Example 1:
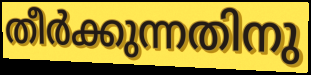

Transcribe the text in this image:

തീർക്കുന്നതിനു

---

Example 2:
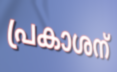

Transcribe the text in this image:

പ്രകാശന്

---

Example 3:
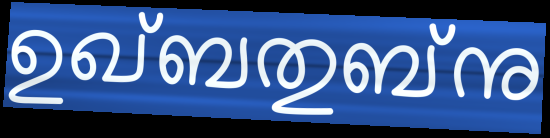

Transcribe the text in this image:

ഉഖ്ബതുബ്നു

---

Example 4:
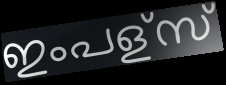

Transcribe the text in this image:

ഇംപള്സ്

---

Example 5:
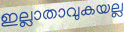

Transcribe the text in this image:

ഇല്ലാതാവുകയല്ല